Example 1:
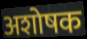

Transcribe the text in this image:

अशोषक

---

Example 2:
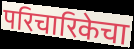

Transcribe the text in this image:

परिचारिकेचा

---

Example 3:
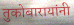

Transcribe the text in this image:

तुकोबारायांनी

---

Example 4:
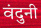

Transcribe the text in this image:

वंदुनी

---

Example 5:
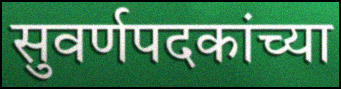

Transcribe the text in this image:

सुवर्णपदकांच्या